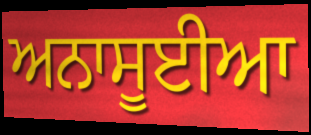
ਅਨਾਸੂਈਆ